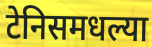
टेनिसमधल्या